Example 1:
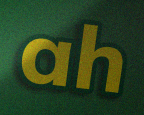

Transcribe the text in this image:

ah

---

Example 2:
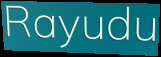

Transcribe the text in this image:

Rayudu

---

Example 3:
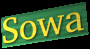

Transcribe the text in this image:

Sowa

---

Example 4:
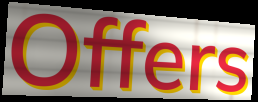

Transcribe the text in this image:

Offers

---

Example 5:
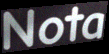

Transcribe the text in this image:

Nota